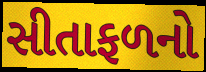
સીતાફળનો